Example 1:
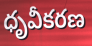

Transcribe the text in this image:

ధృవీకరణ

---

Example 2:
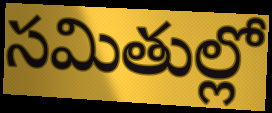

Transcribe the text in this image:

సమితుల్లో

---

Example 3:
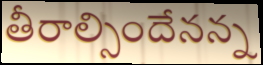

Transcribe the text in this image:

తీరాల్సిందేనన్న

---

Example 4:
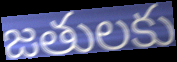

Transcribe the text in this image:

జతులకు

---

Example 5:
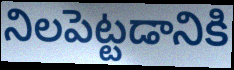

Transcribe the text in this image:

నిలపెట్టడానికి